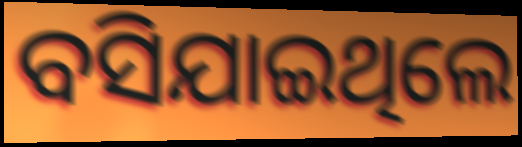
ବସିଯାଇଥିଲେ